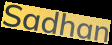
Sadhan